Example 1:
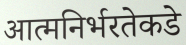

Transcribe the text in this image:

आत्मनिर्भरतेकडे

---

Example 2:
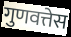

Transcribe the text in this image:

गुणवत्तेस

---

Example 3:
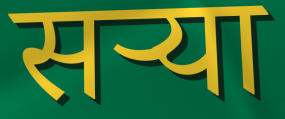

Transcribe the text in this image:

सऱ्या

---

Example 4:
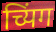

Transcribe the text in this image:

च्यिंग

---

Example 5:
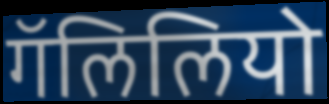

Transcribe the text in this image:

गॅलिलियो